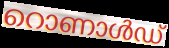
റൊണാൾഡ്